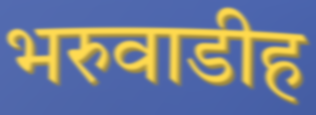
भरुवाडीह